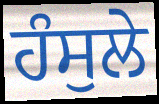
ਹੰਸੁਲੇ